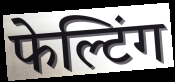
फेल्टिंग